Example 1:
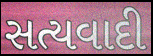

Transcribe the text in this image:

સત્યવાદી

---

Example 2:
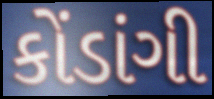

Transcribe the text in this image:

કોંડાંગી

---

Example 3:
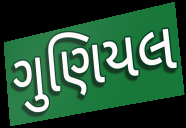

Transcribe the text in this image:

ગુણિયલ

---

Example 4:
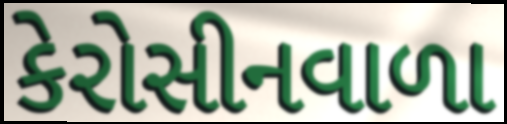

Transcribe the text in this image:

કેરોસીનવાળા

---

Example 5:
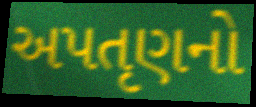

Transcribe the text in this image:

અપતૃણનો